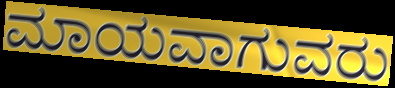
ಮಾಯವಾಗುವರು